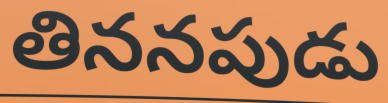
తిననపుడు